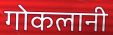
गोकलानी